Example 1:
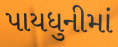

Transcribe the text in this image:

પાયધુનીમાં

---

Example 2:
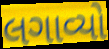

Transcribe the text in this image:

લગાવ્યો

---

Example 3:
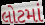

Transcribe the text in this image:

લોટમાં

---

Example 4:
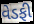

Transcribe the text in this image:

વેડફી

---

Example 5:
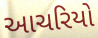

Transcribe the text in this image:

આચરિયો